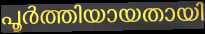
പൂർത്തിയായതായി